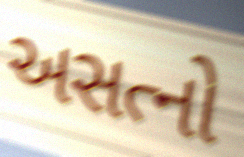
અસત્નો